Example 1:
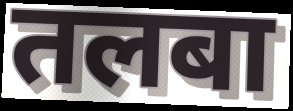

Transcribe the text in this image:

तलबा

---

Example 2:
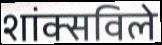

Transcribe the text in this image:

शांक्सविले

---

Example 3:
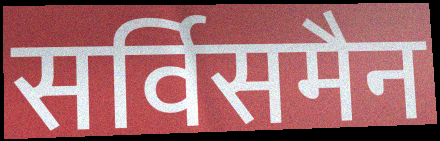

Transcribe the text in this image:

सर्विसमैन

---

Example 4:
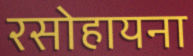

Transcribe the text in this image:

रसोहायना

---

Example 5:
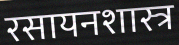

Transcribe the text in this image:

रसायनशास्त्र